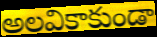
అలవికాకుండా